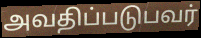
அவதிப்படுபவர்